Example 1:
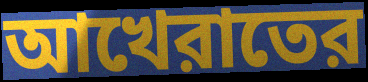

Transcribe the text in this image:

আখেরাতের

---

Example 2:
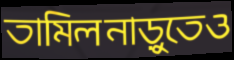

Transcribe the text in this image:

তামিলনাড়ুতেও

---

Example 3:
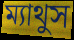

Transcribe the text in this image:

ম্যাথুস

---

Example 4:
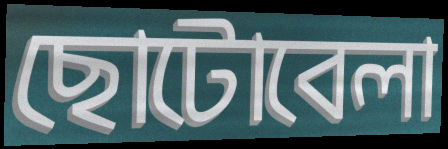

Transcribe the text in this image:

ছোটোবেলা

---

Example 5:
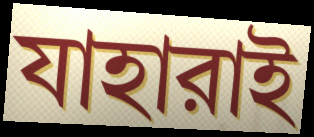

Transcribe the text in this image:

যাহারাই